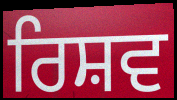
ਰਿਸ਼ਵ